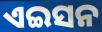
ଏଇସନ